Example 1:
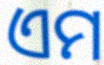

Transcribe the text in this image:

ଏମ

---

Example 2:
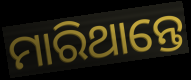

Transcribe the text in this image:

ମାରିଥାନ୍ତେ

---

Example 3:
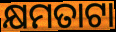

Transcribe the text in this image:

କ୍ଷମତାଟା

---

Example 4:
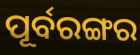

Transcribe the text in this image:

ପୂର୍ବରଙ୍ଗର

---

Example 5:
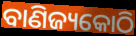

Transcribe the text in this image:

ବାଣିଜ୍ୟକୋଠି